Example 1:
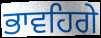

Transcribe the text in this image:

ਭਾਵਹਿਗੇ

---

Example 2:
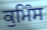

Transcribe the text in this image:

ਕੁਮਿੰਸ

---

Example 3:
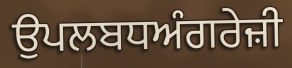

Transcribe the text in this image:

ਉਪਲਬਧਅੰਗਰੇਜ਼ੀ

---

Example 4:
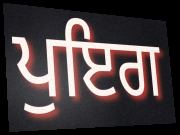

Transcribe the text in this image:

ਪੁਇਗ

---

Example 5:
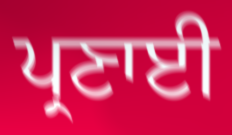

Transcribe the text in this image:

ਪ੍ਰਣਾਈ